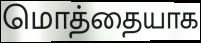
மொத்தையாக